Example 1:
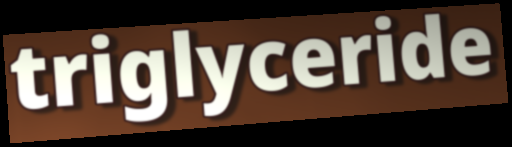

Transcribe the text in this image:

triglyceride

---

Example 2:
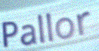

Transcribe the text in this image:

Pallor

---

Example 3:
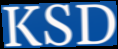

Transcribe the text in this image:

KSD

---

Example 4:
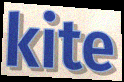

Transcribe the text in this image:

kite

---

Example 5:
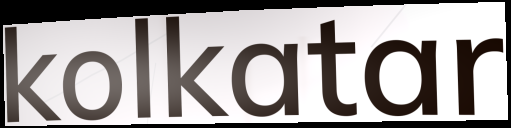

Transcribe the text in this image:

kolkatar